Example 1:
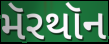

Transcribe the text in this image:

મૅરથૉન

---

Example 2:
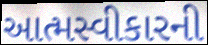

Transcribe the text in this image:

આત્મસ્વીકારની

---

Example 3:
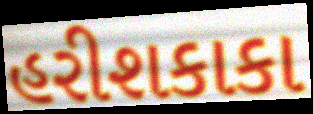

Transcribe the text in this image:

હરીશકાકા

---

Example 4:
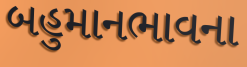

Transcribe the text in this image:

બહુમાનભાવના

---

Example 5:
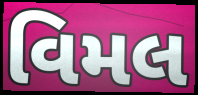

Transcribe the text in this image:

વિમલ